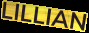
LILLIAN